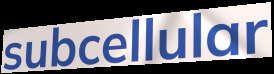
subcellular